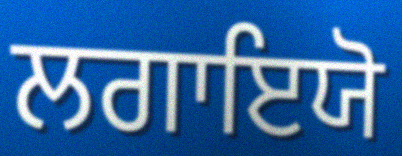
ਲਗਾਇਯੋ